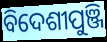
ବିଦେଶୀପୁଞ୍ଜି